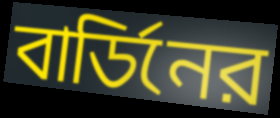
বার্ডিনের